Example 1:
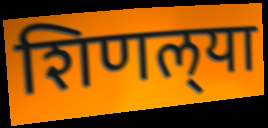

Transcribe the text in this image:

शिणल्या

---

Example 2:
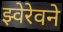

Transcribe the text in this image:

झ्वेरेवने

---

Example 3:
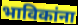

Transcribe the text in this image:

भाविकांना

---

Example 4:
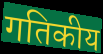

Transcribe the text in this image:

गतिकीय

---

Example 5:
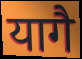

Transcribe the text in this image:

यागै